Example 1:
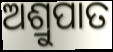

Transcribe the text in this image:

ଅଶ୍ରୁପାତ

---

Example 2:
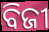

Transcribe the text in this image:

ବିଜୀ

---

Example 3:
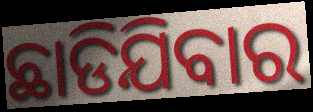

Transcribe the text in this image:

ଛାଡିଯିବାର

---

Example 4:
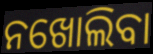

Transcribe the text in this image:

ନଖୋଲିବା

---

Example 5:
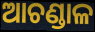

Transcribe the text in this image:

ଆଚଣ୍ଡାଳ